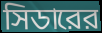
সিডারের